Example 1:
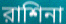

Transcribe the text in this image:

রাশিনা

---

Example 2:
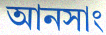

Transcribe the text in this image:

আনসাং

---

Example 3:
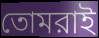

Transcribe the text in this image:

তোমরাই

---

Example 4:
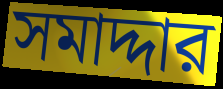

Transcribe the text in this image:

সমাদ্দার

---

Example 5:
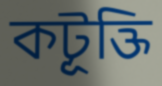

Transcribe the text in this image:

কটূক্তি